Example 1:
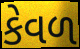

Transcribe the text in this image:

કેવળ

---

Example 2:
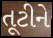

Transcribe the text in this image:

તૂટીને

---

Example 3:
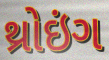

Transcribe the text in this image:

થ્રોઇંગ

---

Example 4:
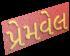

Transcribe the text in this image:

પ્રેમવેલ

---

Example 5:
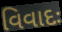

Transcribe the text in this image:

વિવાદઃ